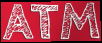
ATM